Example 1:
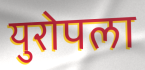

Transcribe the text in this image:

युरोपला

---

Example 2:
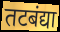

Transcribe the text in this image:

तटबंद्या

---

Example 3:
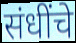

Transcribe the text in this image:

संधींचे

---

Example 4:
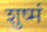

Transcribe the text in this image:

शुष्मं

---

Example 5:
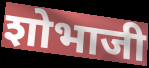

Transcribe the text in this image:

शोभाजी